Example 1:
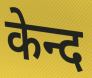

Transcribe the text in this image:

केन्द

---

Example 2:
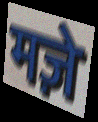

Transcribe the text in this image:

मज़े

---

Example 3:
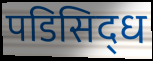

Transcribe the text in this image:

पडिसिद्ध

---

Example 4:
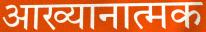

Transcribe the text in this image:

आख्यानात्मक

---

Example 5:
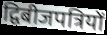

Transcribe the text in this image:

द्विबीजपत्रियों